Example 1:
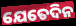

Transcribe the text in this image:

ଯେତେଦିନ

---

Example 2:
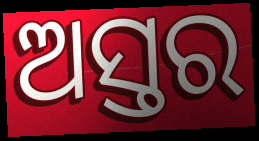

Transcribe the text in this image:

ଅସ୍ତର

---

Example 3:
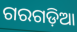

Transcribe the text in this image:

ଗରଗଡ଼ିଆ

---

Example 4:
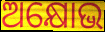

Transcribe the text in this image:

ଅକ୍ଷୋଭ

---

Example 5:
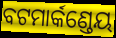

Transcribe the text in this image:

ବଟମାର୍କଣ୍ଡେୟ